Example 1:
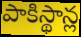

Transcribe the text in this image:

పాకిస్థాన్ల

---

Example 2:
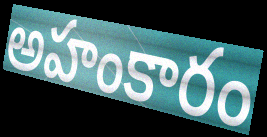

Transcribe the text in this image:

అహంకారం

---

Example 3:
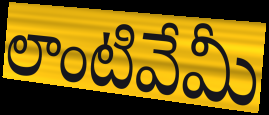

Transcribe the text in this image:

లాంటివేమీ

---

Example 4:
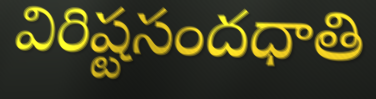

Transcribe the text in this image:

విరిష్టసందధాతి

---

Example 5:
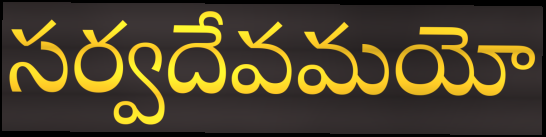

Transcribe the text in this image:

సర్వదేవమయో